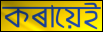
কৰায়েই